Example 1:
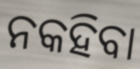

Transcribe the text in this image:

ନକହିବା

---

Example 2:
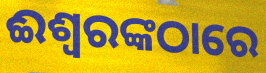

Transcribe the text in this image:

ଈଶ୍ୱରଙ୍କଠାରେ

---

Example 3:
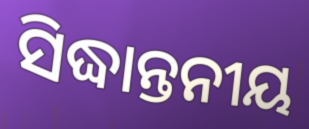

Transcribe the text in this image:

ସିଦ୍ଧାନ୍ତନୀୟ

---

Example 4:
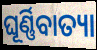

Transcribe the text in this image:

ଘୂର୍ଣ୍ଣିବାତ୍ୟା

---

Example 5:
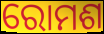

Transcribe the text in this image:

ରୋମଶ